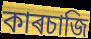
কাৰচাজি